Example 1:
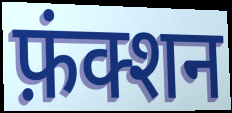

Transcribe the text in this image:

फ़ंक्शन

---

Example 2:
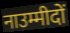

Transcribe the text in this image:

नाउम्मीदों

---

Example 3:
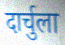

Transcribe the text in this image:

दार्चुला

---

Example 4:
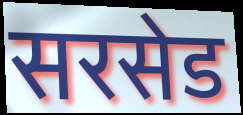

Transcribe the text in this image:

सरसेड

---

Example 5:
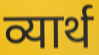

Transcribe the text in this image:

व्यार्थ